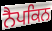
ਨੈਪਕਿਨ